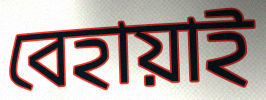
বেহায়াই